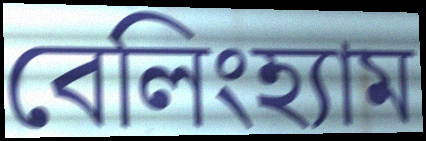
বেলিংহ্যাম